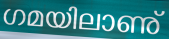
ഗമയിലാണു്